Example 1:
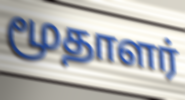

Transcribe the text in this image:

மூதாளர்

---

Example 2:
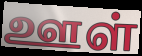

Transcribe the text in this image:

ஊள்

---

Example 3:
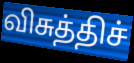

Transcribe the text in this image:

விசுத்திச்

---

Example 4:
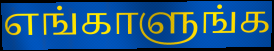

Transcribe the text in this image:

எங்காளுங்க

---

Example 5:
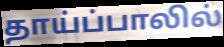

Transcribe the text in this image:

தாய்ப்பாலில்